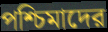
পশ্চিমাদের